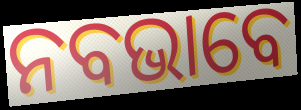
ନବଭାବେ